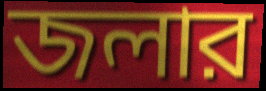
জলার